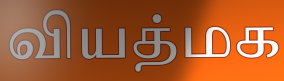
வியத்மக